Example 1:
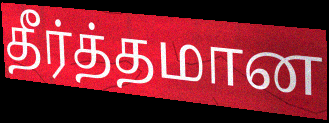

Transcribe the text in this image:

தீர்த்தமான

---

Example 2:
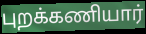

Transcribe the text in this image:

புறக்கணியார்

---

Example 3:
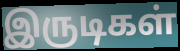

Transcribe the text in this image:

இருடிகள்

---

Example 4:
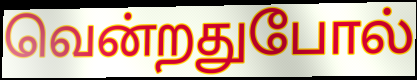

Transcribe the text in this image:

வென்றதுபோல்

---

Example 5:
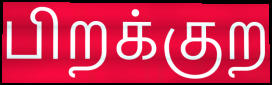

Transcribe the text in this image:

பிறக்குற